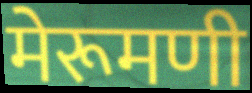
मेरूमणी